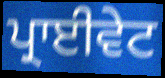
ਪ੍ਰਾਈਵੇਟ